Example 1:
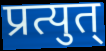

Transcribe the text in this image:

प्रत्युत्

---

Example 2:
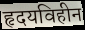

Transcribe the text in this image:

हृदयविहीन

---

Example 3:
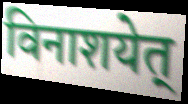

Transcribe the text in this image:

विनाशयेत्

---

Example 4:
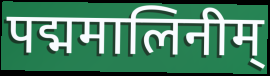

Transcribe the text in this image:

पद्ममालिनीम्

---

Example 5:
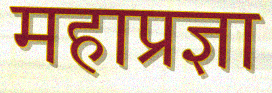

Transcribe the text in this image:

महाप्रज्ञा